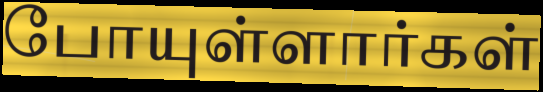
போயுள்ளார்கள்